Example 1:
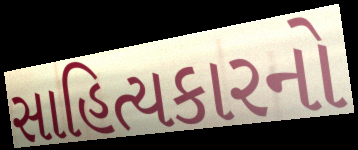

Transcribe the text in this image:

સાહિત્યકારનો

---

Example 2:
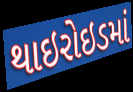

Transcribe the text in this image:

થાઇરોઇડમાં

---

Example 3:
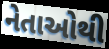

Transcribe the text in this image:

નેતાઓથી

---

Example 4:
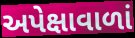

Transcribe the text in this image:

અપેક્ષાવાળાં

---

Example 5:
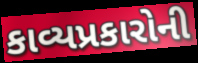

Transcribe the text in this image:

કાવ્યપ્રકારોની